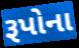
રૂપોના